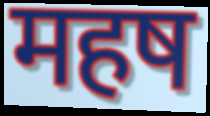
महष